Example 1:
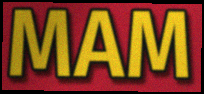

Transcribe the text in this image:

MAM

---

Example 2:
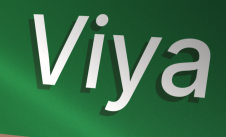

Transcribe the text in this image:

Viya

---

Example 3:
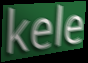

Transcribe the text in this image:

kele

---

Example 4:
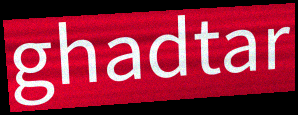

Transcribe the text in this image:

ghadtar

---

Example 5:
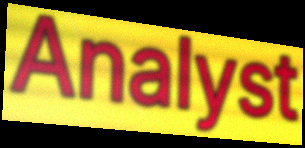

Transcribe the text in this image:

Analyst